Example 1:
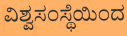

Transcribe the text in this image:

ವಿಶ್ವಸಂಸ್ಥೆಯಿಂದ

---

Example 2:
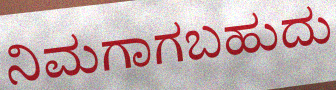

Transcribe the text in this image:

ನಿಮಗಾಗಬಹುದು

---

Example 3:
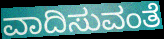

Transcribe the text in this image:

ವಾದಿಸುವಂತೆ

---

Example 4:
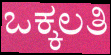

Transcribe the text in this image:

ಒಕ್ಕಲತಿ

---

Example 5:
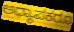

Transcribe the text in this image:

ಅಧ್ಯಾಪಕರೂ